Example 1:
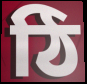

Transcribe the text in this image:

ঠি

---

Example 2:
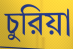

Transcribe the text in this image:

চুরিয়া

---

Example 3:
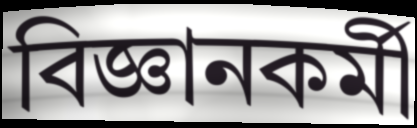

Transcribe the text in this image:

বিজ্ঞানকর্মী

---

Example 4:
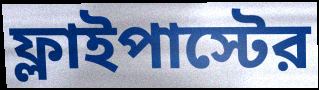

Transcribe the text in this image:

ফ্লাইপাস্টের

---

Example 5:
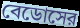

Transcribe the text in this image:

বেডোসের